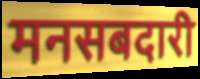
मनसबदारी